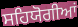
ਸਹਿਯੋਗੀਆਂ